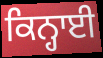
ਕਿਨ੍ਹਾਈ